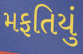
મફતિયું